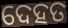
ଦେହତ